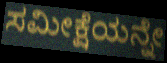
ಸಮೀಕ್ಷೆಯನ್ನೇ